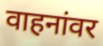
वाहनांवर